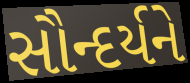
સૌન્દર્યને